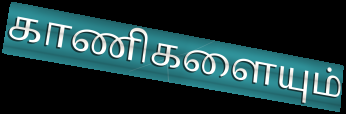
காணிகளையும்